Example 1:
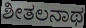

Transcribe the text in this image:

ಶೀತಲನಾಥ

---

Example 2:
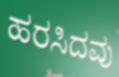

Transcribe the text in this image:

ಹರಸಿದವು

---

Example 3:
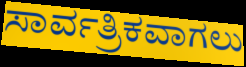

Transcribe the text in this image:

ಸಾರ್ವತ್ರಿಕವಾಗಲು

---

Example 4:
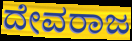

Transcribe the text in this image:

ದೇವರಾಜ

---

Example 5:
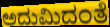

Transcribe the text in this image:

ಅದುಮಿದಂತೆ